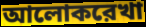
আলোকরেখা